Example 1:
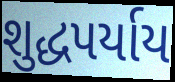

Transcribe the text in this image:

શુદ્ધપર્યાય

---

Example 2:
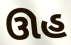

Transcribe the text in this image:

ઊહ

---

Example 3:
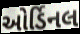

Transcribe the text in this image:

ઓર્ડિનલ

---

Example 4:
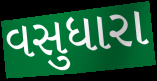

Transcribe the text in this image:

વસુધારા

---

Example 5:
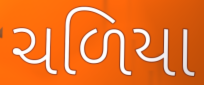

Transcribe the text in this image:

ચળિયા